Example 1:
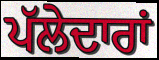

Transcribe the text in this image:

ਪੱਲੇਦਾਰਾਂ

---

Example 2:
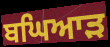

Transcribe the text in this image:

ਬਘਿਆੜ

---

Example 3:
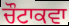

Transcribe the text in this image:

ਚੌਟਾਕਵਾ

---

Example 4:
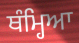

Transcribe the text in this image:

ਥੰਮ੍ਹਿਆ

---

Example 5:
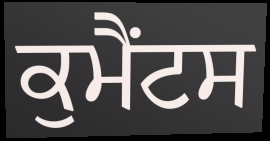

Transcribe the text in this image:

ਕੁਮੈਂਟਸ